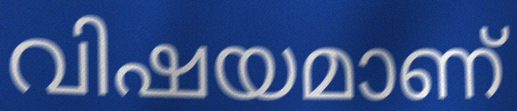
വിഷയമാണ്